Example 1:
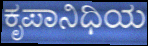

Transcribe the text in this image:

ಕೃಪಾನಿಧಿಯ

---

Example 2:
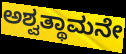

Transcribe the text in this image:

ಅಶ್ವತ್ಥಾಮನೇ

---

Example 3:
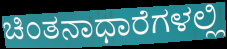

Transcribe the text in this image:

ಚಿಂತನಾಧಾರೆಗಳಲ್ಲಿ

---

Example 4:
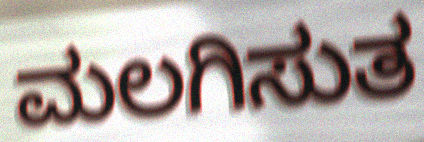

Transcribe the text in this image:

ಮಲಗಿಸುತ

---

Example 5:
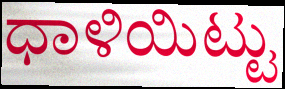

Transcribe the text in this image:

ಧಾಳಿಯಿಟ್ಟು